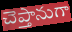
చెప్తానుగా